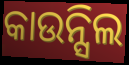
କାଉନ୍ସିଲ